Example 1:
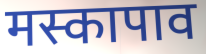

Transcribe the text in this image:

मस्कापाव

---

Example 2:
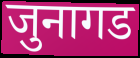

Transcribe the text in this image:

जुनागड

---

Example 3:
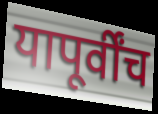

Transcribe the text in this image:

यापूर्वींच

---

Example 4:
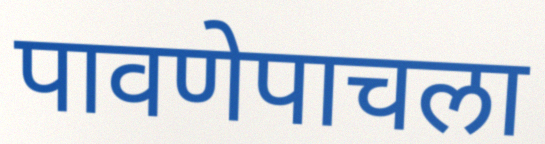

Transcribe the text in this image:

पावणेपाचला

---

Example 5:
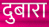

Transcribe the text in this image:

दुबारा